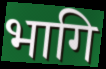
भागि